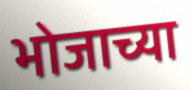
भोजाच्या